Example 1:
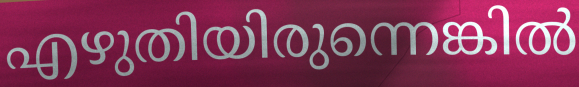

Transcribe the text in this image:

എഴുതിയിരുന്നെങ്കിൽ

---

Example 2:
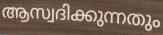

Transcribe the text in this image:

ആസ്വദിക്കുന്നതും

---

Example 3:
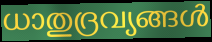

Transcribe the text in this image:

ധാതുദ്രവ്യങ്ങൾ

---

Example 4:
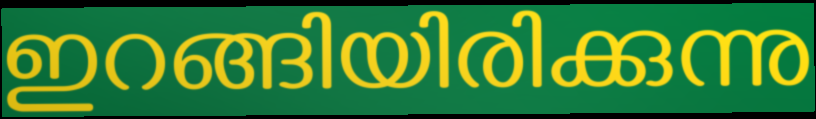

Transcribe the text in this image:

ഇറങ്ങിയിരിക്കുന്നു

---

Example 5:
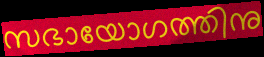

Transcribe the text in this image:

സഭായോഗത്തിനു